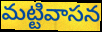
మట్టివాసన